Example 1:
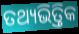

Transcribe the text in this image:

ତଥ୍ୟଭିତ୍ତିକ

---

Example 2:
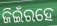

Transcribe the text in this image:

ଜିଇଁରହେ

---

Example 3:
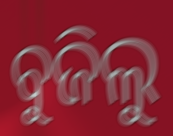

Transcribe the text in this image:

ବୁଜିଲୁ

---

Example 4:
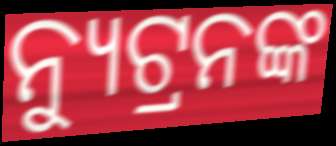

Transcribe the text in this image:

ନ୍ୟୁଟ୍ରନଙ୍କ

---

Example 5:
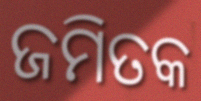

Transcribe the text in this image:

ଜମିତକ